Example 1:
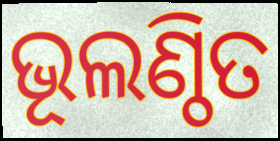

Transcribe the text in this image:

ଭୂଲଣ୍ଠିତ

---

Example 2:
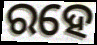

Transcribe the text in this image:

ରହେ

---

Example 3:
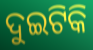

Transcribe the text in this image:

ଦୁଇଟିକି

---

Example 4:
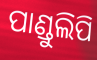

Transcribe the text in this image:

ପାଣ୍ଡୁଲିପି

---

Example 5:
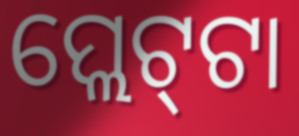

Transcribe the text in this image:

ପ୍ଲେଟ୍‍ଟା